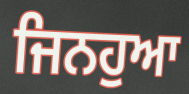
ਜਿਨਹੁਆ